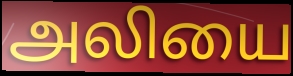
அலியை